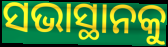
ସଭାସ୍ଥାନକୁ